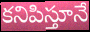
కనిపిస్తూనే